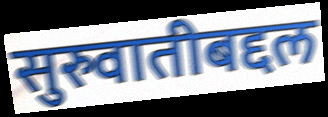
सुरुवातीबद्दल